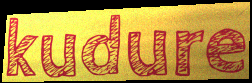
kudure